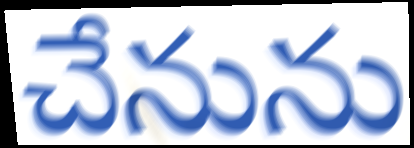
చేనును